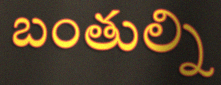
బంతుల్ని